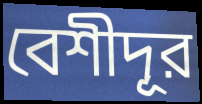
বেশীদূর